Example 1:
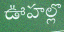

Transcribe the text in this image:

ఊహల్లొ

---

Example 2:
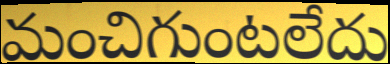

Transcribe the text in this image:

మంచిగుంటలేదు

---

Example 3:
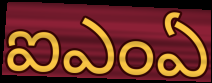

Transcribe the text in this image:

ఐఎంఏ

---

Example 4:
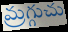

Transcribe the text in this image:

మ్రగ్గుచు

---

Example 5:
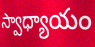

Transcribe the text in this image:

స్వాధ్యాయం